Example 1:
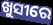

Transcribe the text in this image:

ଖୁସୀରେ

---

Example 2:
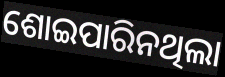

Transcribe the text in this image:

ଶୋଇପାରିନଥିଲା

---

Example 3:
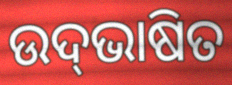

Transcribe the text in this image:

ଉଦ୍‍ଭାଷିତ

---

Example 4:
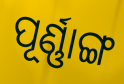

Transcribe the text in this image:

ପୂର୍ଣ୍ଣାଙ୍ଗ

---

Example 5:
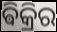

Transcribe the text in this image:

ଵିକ୍ରିର